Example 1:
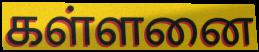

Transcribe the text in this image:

கள்ளனை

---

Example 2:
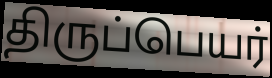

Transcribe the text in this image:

திருப்பெயர்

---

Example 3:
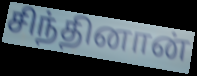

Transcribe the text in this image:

சிந்தினான்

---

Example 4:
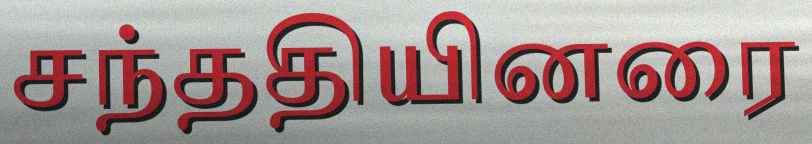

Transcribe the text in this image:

சந்ததியினரை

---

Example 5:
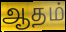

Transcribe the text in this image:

ஆதம்